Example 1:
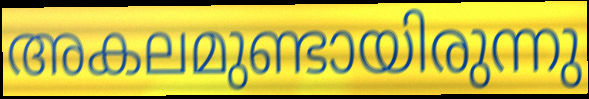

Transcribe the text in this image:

അകലമുണ്ടായിരുന്നു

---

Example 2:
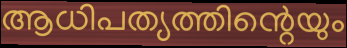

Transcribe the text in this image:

ആധിപത്യത്തിന്റെയും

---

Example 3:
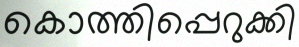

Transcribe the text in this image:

കൊത്തിപ്പെറുക്കി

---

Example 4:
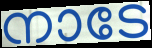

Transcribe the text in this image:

നാടേ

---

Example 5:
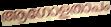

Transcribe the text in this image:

ആഗോളതാപം